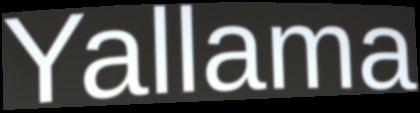
Yallama